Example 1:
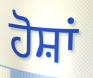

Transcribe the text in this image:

ਹੋਸ਼ਾਂ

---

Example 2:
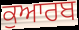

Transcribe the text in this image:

ਕੁਆਰਬ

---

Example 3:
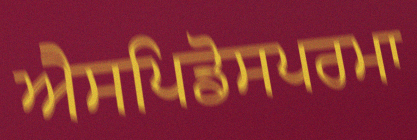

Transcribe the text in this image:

ਐਸਪਿਡੋਸਪਰਮਾ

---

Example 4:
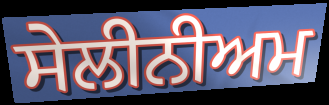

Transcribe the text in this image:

ਸੇਲੀਨੀਅਮ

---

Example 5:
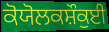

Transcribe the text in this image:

ਕੋਯੋਲਕਸ਼ੌਕੁਈ